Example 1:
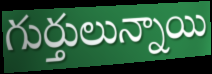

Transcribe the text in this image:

గుర్తులున్నాయి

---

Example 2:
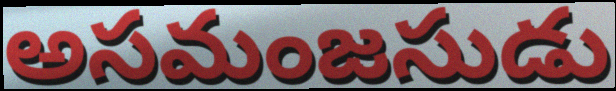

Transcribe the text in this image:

అసమంజసుడు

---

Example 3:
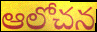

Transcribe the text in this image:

ఆలోచన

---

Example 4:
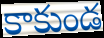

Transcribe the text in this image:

కాకుండ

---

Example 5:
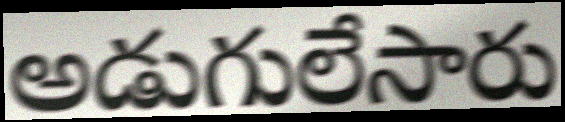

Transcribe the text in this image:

అడుగులేసారు